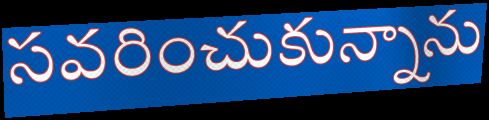
సవరించుకున్నాను